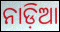
ନାଡ଼ିଆ